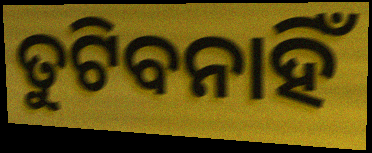
ତୁଟିବନାହିଁ